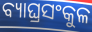
ବ୍ୟାଘ୍ରସଂକୁଳ